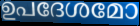
ഉപദേശമോ